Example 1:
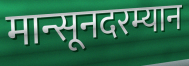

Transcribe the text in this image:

मान्सूनदरम्यान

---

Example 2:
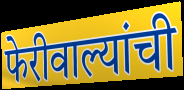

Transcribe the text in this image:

फेरीवाल्यांची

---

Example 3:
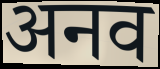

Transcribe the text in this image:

अनव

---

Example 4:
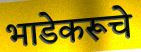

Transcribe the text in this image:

भाडेकरूचे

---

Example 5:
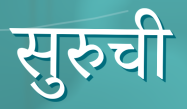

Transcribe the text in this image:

सुरुची